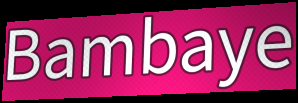
Bambaye